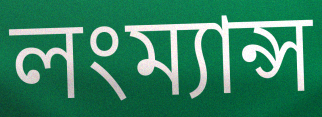
লংম্যান্স